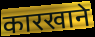
कारखाने